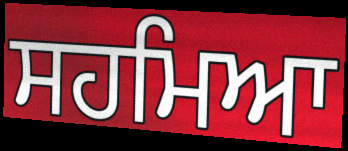
ਸਹਮਿਆ